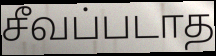
சீவப்படாத